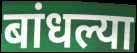
बांधल्या